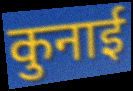
कुनाई